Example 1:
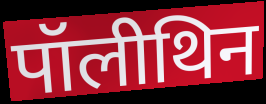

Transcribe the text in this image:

पॉलीथिन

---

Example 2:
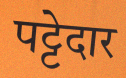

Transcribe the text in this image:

पट्टेदार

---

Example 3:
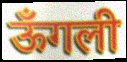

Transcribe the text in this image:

ऊँगली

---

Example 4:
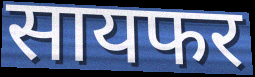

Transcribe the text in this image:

सायफर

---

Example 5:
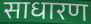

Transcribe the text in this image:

साधारण